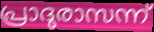
പ്രാദുരാസന്ന്